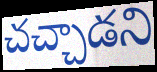
చచ్చాడని